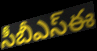
సీబీఎస్ఈ